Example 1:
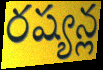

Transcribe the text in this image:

రష్యన్ల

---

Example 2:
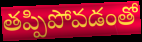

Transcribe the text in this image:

తప్పిపోవడంతో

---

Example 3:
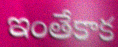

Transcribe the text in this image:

ఇంతేకాక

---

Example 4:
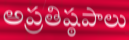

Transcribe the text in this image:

అప్రతిష్ఠపాలు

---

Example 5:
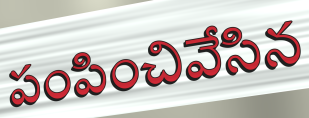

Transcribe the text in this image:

పంపించివేసిన